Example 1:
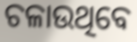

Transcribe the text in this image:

ଚଳାଉଥିବେ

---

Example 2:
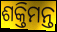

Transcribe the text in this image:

ଶକ୍ତିମନ୍ତ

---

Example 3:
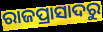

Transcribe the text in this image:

ରାଜପ୍ରାସାଦରୁ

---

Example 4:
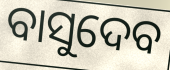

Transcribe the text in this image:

ବାସୁଦେବ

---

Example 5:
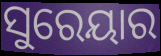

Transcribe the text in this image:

ସୁରେୟାର